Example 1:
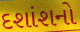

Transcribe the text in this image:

દશાંશનો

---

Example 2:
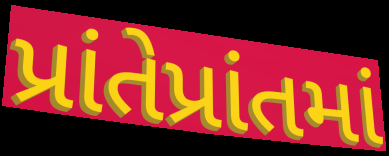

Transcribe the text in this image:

પ્રાંતેપ્રાંતમાં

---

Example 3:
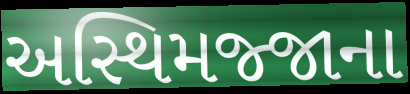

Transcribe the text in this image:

અસ્થિમજ્જાના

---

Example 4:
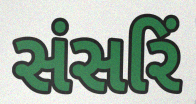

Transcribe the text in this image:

સંસરિં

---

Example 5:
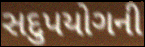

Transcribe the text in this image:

સદુપયોગની